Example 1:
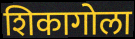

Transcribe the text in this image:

शिकागोला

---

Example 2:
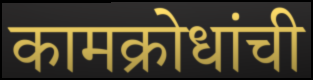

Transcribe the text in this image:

कामक्रोधांची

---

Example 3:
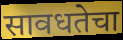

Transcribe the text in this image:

सावधतेचा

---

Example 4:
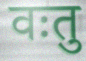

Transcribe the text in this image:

वःतु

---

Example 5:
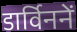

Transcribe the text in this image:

डार्विननें